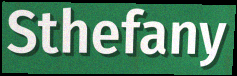
Sthefany